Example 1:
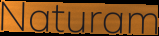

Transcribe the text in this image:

Naturam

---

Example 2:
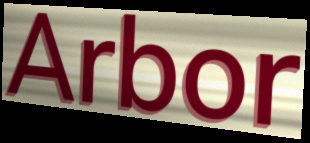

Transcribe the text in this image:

Arbor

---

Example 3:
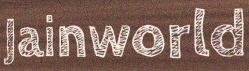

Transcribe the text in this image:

Jainworld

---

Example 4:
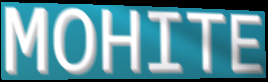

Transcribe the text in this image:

MOHITE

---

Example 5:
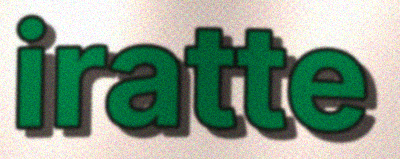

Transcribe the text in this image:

iratte